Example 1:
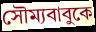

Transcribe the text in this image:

সৌম্যবাবুকে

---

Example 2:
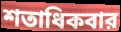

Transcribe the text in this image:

শতাধিকবার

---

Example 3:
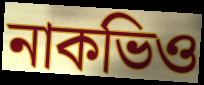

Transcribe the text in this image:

নাকভিও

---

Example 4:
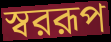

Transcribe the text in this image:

স্বররূপ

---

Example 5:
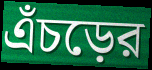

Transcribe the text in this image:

এঁচড়ের